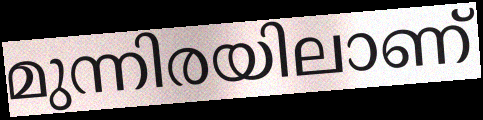
മുന്നിരയിലാണ്